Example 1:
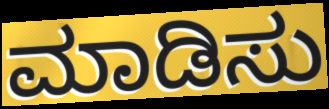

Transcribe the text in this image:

ಮಾಡಿಸು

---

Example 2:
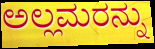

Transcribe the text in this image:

ಅಲ್ಲಮರನ್ನು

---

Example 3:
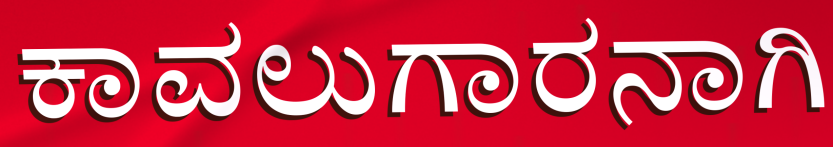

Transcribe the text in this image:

ಕಾವಲುಗಾರನಾಗಿ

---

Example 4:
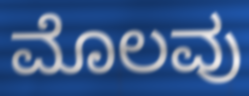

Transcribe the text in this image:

ಮೊಲವು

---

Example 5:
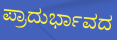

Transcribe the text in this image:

ಪ್ರಾದುರ್ಭಾವದ